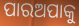
ପାରଅପାକୁ